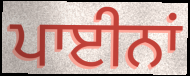
ਪਾਈਨਾਂ